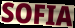
SOFIA